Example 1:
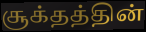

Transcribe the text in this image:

சூக்தத்தின்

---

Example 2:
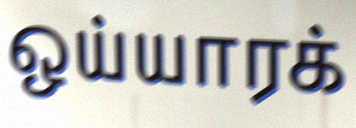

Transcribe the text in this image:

ஒய்யாரக்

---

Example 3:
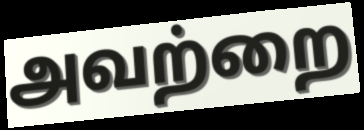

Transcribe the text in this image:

அவற்றை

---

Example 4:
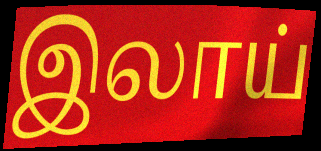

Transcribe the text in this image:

இலாய்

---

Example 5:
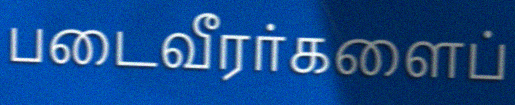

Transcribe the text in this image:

படைவீரர்களைப்